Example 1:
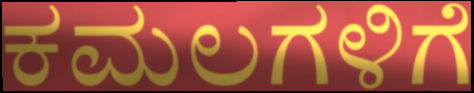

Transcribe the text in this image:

ಕಮಲಗಳಿಗೆ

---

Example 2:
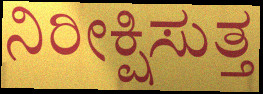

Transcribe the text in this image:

ನಿರೀಕ್ಷಿಸುತ್ತ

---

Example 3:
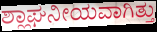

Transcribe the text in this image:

ಶ್ಲಾಘನೀಯವಾಗಿತ್ತು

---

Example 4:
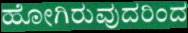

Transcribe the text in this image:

ಹೋಗಿರುವುದರಿಂದ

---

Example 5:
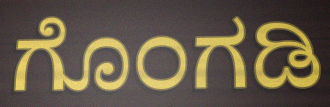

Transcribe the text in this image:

ಗೊಂಗಡಿ